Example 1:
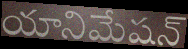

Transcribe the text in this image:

యానిమేషన్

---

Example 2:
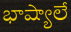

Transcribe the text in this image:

భాష్యాలే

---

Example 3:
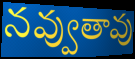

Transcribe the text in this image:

నవ్వుతావు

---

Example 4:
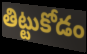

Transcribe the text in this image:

తిట్టుకోడం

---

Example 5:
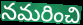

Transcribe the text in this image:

నమరించి